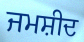
ਜਮਸ਼ੀਦ